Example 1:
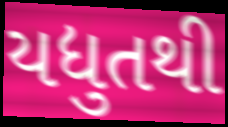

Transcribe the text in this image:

યદ્યુતથી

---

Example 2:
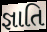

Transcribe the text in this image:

જ્ઞાતિ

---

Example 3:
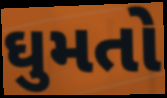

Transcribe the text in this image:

ઘુમતો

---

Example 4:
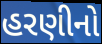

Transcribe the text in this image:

હરણીનો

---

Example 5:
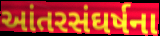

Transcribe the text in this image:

આંતરસંઘર્ષના